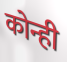
कोन्ही